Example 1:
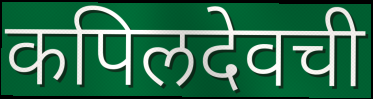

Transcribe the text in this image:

कपिलदेवची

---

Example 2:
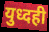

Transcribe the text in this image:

युध्दही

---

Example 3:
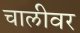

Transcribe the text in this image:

चालीवर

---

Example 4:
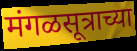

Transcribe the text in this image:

मंगळसूत्राच्या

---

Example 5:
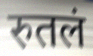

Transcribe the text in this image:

रुतलं